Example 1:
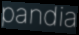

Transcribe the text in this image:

pandia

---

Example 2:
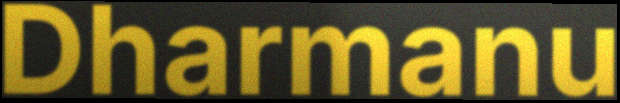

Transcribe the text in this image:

Dharmanu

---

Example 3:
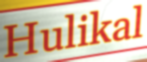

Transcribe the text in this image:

Hulikal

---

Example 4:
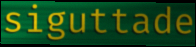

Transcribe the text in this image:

siguttade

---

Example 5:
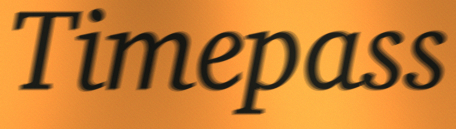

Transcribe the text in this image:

Timepass